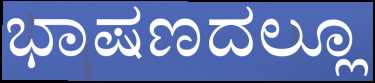
ಭಾಷಣದಲ್ಲೂ